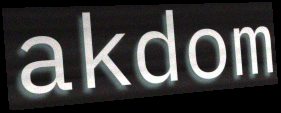
akdom